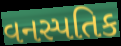
વનસ્પતિક